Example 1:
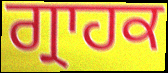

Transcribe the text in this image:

ਗ੍ਰਾਹਕ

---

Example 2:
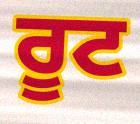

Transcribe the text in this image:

ਰੂਟ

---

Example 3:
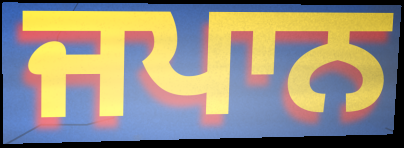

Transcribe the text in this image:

ਜਪਾਨ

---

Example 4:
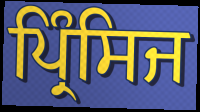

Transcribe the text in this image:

ਪ੍ਰਿੰਸਿਜ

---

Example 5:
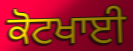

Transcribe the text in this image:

ਕੋਟਖਾਈ